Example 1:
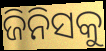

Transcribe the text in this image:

ଜିନିସକୁ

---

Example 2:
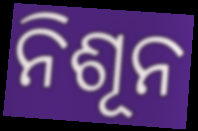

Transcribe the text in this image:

ନିଶୂନ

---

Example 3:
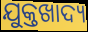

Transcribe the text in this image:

ଯୁକ୍ତଖାଦ୍ୟ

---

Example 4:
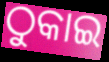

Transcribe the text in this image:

ଠୁକାଇ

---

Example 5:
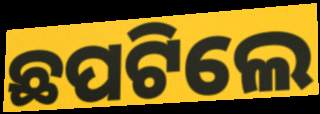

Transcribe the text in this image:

ଛପଟିଲେ